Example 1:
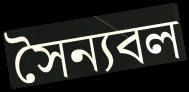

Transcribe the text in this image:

সৈন্যবল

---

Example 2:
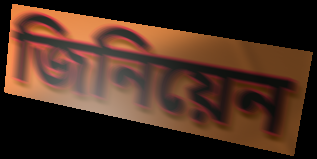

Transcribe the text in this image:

জিনিয়েন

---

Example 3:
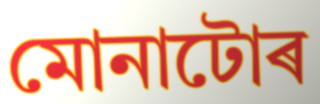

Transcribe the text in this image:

মোনাটোৰ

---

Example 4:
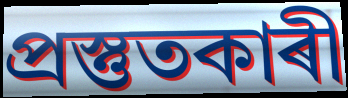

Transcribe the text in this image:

প্ৰস্তুতকাৰী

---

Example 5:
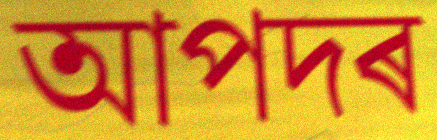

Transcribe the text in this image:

আপদৰ